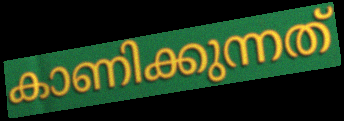
കാണിക്കുന്നത്